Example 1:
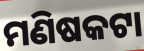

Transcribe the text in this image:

ମଣିଷକଟା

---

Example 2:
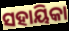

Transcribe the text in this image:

ସହାୟିକା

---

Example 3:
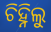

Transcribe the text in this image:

ଚିହ୍ନିଲୁ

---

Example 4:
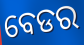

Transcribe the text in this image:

ବେଡର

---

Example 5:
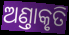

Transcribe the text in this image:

ଅଣ୍ତାକୃତି